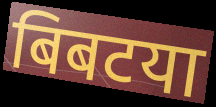
बिबटया